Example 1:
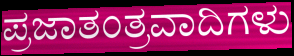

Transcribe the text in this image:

ಪ್ರಜಾತಂತ್ರವಾದಿಗಳು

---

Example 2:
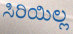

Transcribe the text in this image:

ಸಿರಿಯಿಲ್ಲ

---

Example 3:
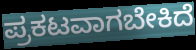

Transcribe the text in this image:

ಪ್ರಕಟವಾಗಬೇಕಿದೆ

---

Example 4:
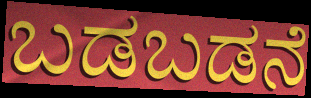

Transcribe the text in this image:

ಬಡಬಡನೆ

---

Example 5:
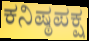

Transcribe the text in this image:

ಕನಿಷ್ಠಪಕ್ಷ